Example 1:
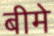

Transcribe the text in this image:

बीमे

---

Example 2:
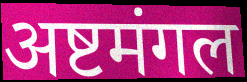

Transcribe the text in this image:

अष्टमंगल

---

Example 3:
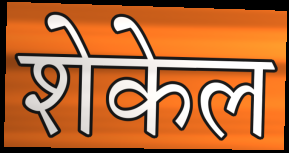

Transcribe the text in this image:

शेकेल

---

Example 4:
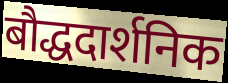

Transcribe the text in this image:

बौद्धदार्शनिक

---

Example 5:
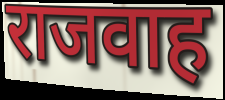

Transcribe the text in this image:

राजवाह